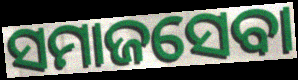
ସମାଜସେବା